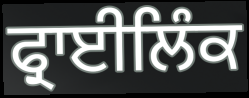
ਫ੍ਰਾਈਲਿੰਕ